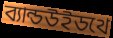
ব্যান্ডউইডথে